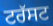
ਟਰੱਸਟ